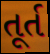
તૂર્ત